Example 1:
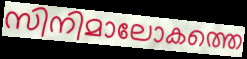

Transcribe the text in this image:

സിനിമാലോകത്തെ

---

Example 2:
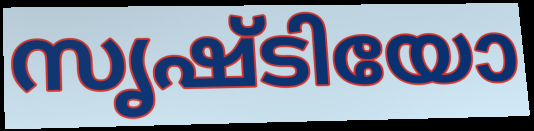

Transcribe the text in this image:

സൃഷ്ടിയോ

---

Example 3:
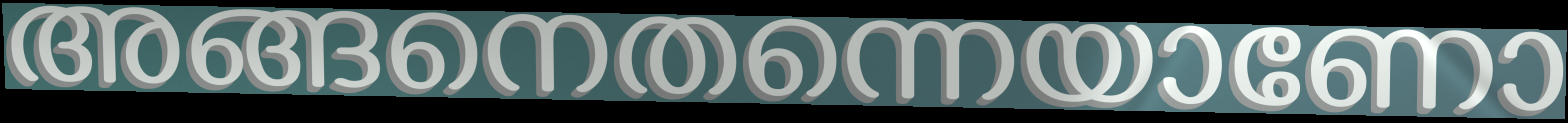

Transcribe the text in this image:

അങ്ങനെതന്നെയാണോ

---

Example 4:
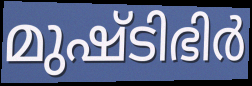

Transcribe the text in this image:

മുഷ്ടിഭിർ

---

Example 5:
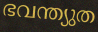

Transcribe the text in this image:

ഭവന്ത്യുത